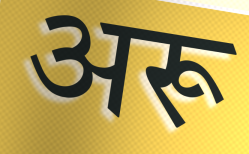
अरू